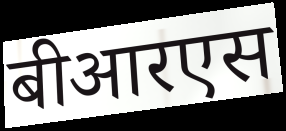
बीआरएस